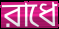
রাধে